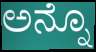
ಅನ್ನೊ